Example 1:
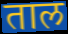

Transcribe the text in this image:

ताल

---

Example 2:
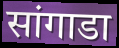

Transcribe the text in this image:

सांगाडा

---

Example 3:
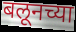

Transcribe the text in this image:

बलूनच्या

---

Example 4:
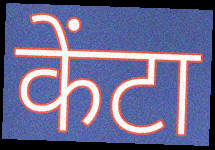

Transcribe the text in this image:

केंटा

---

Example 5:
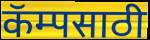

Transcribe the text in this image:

कॅम्पसाठी